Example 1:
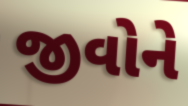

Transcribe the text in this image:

જીવોને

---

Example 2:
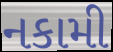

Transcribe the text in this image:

નકામી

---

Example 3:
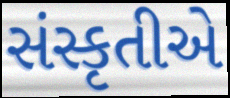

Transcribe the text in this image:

સંસ્કૃતીએ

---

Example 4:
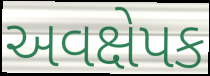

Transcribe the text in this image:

અવક્ષેપક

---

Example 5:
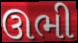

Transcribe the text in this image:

ઊભી